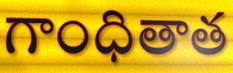
గాంధితాత